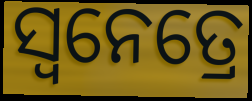
ସ୍ୱନେତ୍ରେ